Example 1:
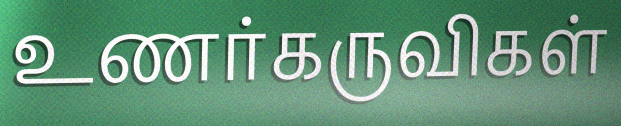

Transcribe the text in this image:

உணர்கருவிகள்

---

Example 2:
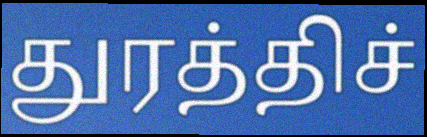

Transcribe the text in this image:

துரத்திச்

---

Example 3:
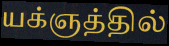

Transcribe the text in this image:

யக்ஞத்தில்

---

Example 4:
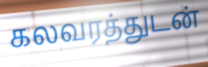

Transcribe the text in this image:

கலவரத்துடன்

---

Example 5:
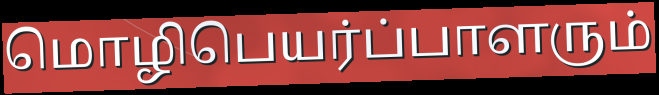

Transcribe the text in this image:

மொழிபெயர்ப்பாளரும்